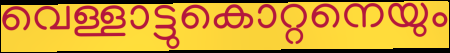
വെള്ളാട്ടുകൊറ്റനെയും